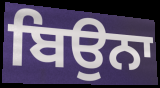
ਬਿਉਨਾ